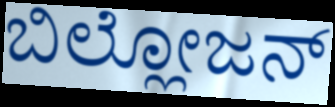
ಬಿಲ್ಲೋಜನ್